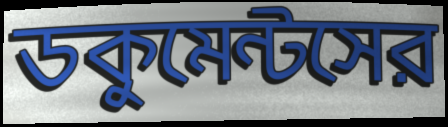
ডকুমেন্টসের